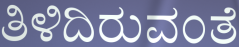
ತಿಳಿದಿರುವಂತೆ